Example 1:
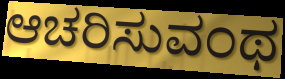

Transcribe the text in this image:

ಆಚರಿಸುವಂಥ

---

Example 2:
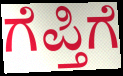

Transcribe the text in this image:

ಗೆಪ್ತಿಗೆ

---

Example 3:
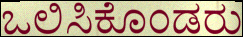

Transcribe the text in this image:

ಒಲಿಸಿಕೊಂಡರು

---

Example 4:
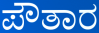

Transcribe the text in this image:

ಪೌತಾರ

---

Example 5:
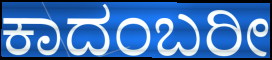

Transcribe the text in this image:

ಕಾದಂಬರೀ